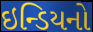
ઇન્ડિયનો